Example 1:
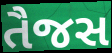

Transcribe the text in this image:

તૈજસ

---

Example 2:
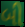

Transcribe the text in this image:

બી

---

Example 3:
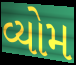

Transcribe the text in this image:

વ્યોમ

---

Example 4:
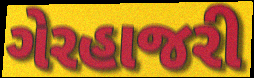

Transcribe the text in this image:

ગેરહાજરી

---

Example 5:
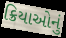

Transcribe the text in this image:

ક્રિયાઓનું